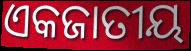
ଏକଜାତୀୟ